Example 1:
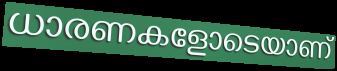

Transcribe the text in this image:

ധാരണകളോടെയാണ്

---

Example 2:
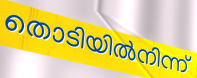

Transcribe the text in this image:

തൊടിയിൽനിന്ന്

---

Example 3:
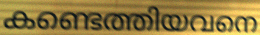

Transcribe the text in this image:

കണ്ടെത്തിയവനെ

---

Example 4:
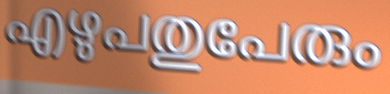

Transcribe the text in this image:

എഴുപതുപേരും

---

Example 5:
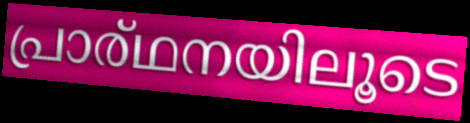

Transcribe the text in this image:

പ്രാര്ഥനയിലൂടെ